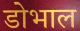
डोभाल